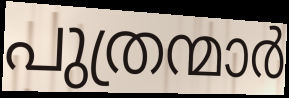
പുത്രന്മാർ